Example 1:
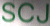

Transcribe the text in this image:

SCJ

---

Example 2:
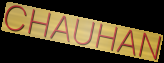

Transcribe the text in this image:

CHAUHAN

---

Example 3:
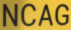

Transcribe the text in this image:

NCAG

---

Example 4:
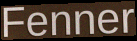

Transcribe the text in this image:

Fenner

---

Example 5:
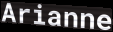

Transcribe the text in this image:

Arianne